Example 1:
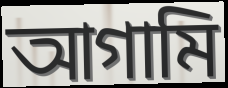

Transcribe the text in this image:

আগামি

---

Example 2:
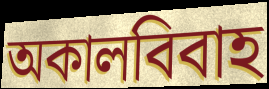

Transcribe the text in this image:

অকালবিবাহ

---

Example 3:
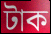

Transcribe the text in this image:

টাক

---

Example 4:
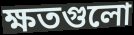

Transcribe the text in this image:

ক্ষতগুলো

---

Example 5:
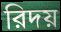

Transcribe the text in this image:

রিদয়